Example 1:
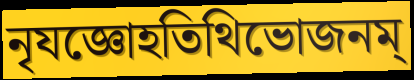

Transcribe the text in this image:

নৃযজ্ঞোহতিথিভোজনম্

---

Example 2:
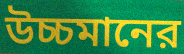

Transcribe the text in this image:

উচ্চমানের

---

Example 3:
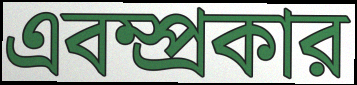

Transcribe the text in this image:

এবম্প্রকার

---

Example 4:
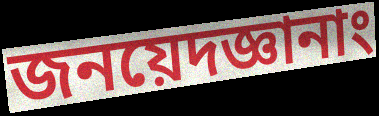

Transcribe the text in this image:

জনয়েদজ্ঞানাং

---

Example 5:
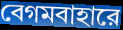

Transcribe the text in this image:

বেগমবাহারে